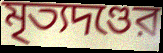
মৃত্যদণ্ডের